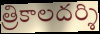
త్రికాలదర్శి